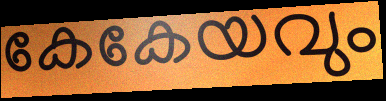
കേകേയവും